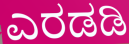
ಎರಡಡಿ